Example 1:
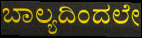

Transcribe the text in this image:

ಬಾಲ್ಯದಿಂದಲೇ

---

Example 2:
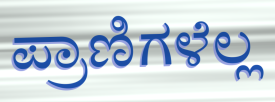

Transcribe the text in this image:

ಪ್ರಾಣಿಗಳೆಲ್ಲ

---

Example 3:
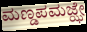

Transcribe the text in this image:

ಮಣ್ಡಪಮಜ್ಝೇ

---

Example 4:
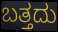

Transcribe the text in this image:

ಬತ್ತದು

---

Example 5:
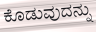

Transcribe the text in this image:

ಕೊಡುವುದನ್ನು